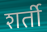
शर्ती